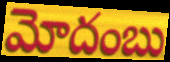
మోదంబు